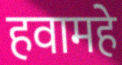
हवामहे